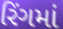
રિંગમાં